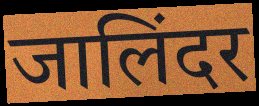
जालिंदर